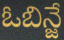
ఓబిన్జే